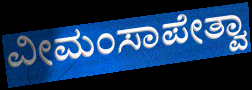
ವೀಮಂಸಾಪೇತ್ವಾ